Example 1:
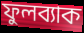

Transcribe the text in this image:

ফুলব্যাক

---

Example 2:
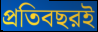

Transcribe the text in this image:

প্রতিবছরই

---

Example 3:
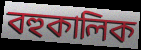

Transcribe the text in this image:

বহুকালিক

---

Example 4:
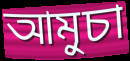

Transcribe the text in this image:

আমুচা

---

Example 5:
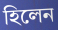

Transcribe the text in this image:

হিলেন